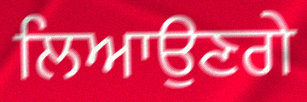
ਲਿਆਉਣਗੇ